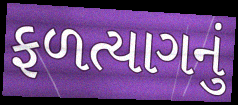
ફળત્યાગનું